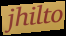
jhilto